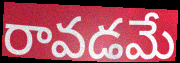
రావడమే